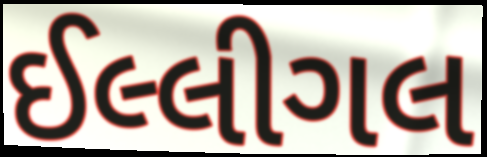
ઈલ્લીગલ